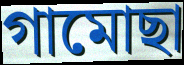
গামোছা